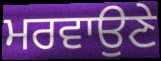
ਮਰਵਾਉਣੇ